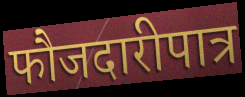
फौजदारीपात्र